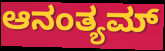
ಆನಂತ್ಯಮ್